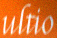
ultio